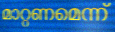
മാറ്റണമെന്ന്